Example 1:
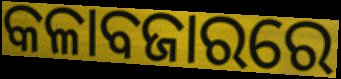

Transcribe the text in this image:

କଳାବଜାରରେ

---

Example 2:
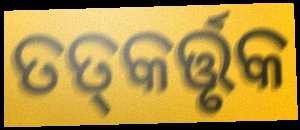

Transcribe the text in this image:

ତତ୍‌କର୍ତ୍ତୃକ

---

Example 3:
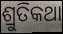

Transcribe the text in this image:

ଶ୍ରୁତିକଥା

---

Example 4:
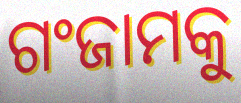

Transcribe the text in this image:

ଗଂଜାମକୁ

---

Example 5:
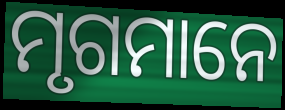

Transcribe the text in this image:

ମୃଗମାନେ